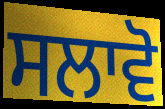
ਸਲਾਵੋ